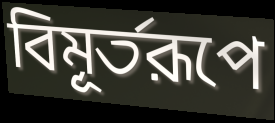
বিমূর্তরূপে